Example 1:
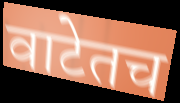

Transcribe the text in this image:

वाटेतच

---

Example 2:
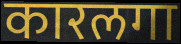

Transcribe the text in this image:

कारलगा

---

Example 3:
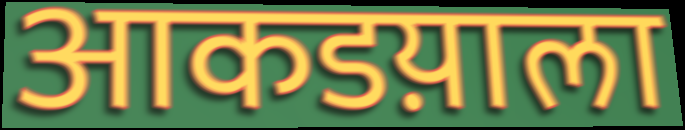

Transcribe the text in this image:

आकडय़ाला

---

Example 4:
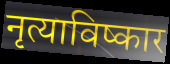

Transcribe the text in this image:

नृत्याविष्कार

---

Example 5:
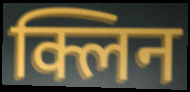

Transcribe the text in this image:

क्लिन